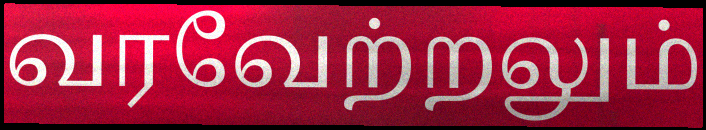
வரவேற்றலும்